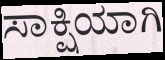
ಸಾಕ್ಷಿಯಾಗಿ